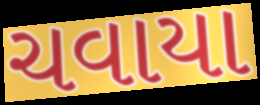
ચવાયા